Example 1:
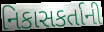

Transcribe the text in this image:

નિકાસકર્તાની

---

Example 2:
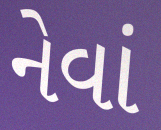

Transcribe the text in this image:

નેવાં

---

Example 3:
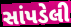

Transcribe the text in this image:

સાંપડેલી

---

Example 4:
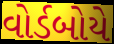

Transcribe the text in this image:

વોર્ડબોયે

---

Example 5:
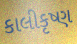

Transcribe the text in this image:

કાલીકૃષ્ણ